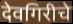
देवगिरीचे